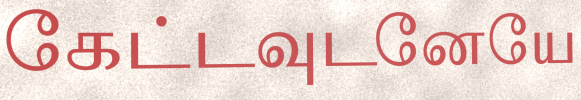
கேட்டவுடனேயே